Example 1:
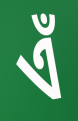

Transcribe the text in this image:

ଏଁ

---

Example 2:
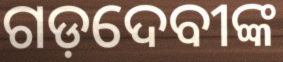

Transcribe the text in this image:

ଗଡ଼ଦେବୀଙ୍କ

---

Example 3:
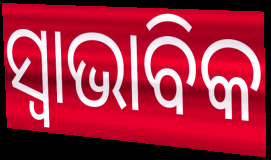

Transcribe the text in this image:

ସ୍ଵାଭାବିକ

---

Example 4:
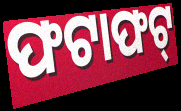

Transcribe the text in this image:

ଫଟାଫଟ୍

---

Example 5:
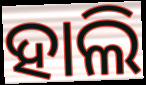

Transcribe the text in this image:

ହାଲି